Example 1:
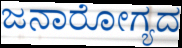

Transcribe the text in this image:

ಜನಾರೋಗ್ಯದ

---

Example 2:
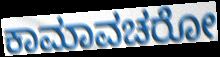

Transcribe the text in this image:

ಕಾಮಾವಚರೋ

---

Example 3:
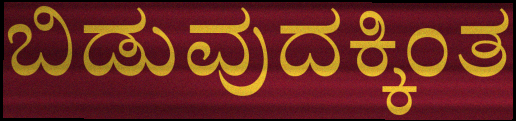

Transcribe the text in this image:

ಬಿಡುವುದಕ್ಕಿಂತ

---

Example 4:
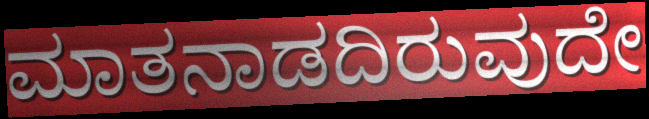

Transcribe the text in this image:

ಮಾತನಾಡದಿರುವುದೇ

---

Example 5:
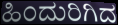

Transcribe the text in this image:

ಹಿಂದುರಿಗಿದ